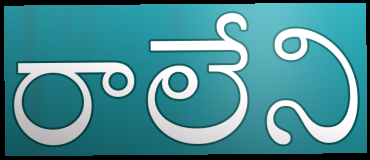
రాలేని